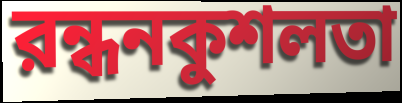
রন্ধনকুশলতা